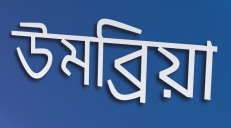
উমব্রিয়া